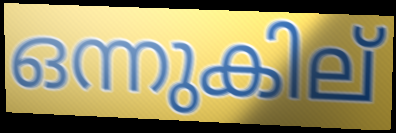
ഒന്നുകില്